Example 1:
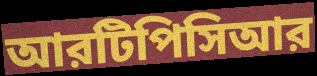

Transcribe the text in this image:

আরটিপিসিআর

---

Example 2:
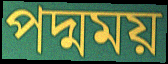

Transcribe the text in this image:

পদ্মময়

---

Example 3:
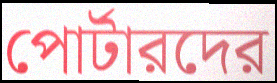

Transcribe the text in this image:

পোর্টারদের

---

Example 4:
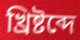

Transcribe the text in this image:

খ্রিষ্টব্দে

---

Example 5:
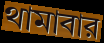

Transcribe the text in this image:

থামাবার